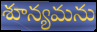
శూన్యమను